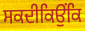
ਸਕਦੀਕਿਉਂਕਿ